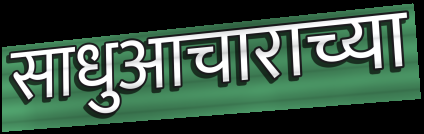
साधुआचाराच्या